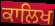
ਕਾਲਿਖ